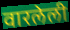
वारलेली